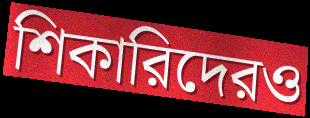
শিকারিদেরও